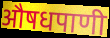
औषधपाणी